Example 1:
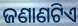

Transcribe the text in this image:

ଜଣାଣଟିଏ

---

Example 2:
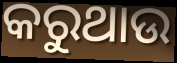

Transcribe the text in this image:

କରୁଥାଉ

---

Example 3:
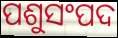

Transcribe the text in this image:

ପଶୁସଂପଦ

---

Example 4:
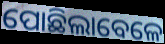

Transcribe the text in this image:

ପୋଛିଲାବେଳେ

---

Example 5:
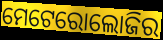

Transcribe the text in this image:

ମେଟେରୋଲୋଜିର